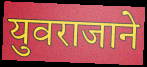
युवराजाने